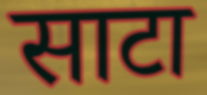
साटा